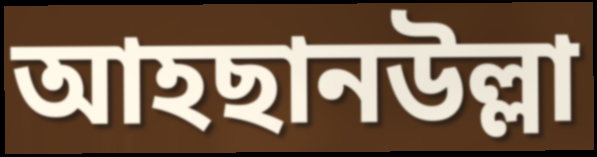
আহছানউল্লা